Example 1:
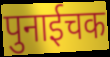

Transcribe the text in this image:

पुनाईचक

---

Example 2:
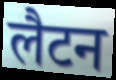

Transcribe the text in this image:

लैटन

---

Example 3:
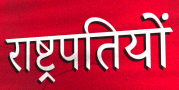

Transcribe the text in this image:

राष्ट्रपतियों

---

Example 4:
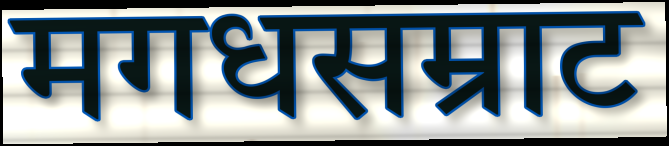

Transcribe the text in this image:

मगधसम्राट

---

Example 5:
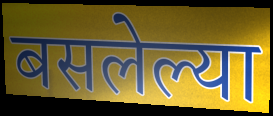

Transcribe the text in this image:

बसलेल्या